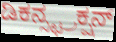
ಡಿಕನ್ಸ್ಟ್ರಕ್ಷನ್